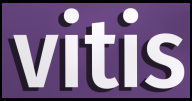
vitis